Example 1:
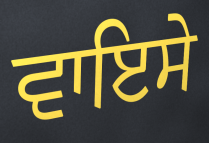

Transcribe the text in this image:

ਵਾਇਸੇ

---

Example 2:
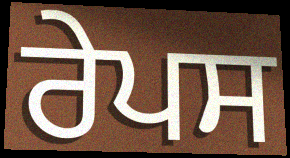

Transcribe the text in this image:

ਰੇਪਸ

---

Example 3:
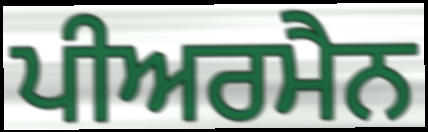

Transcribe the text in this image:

ਪੀਅਰਮੈਨ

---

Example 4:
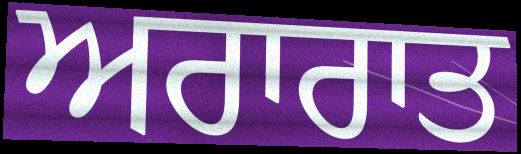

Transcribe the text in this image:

ਅਰਾਰਾਤ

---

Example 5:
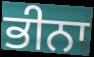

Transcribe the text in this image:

ਭੀਨਾ